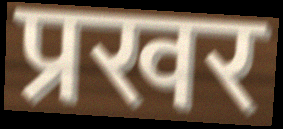
प्रखर